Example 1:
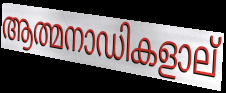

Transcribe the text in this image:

ആത്മനാഡികളാല്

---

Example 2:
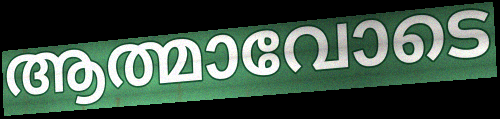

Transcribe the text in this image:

ആത്മാവോടെ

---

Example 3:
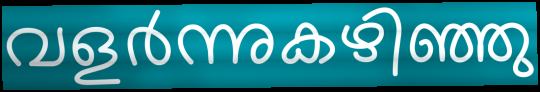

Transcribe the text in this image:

വളർന്നുകഴിഞ്ഞു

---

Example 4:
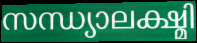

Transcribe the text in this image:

സന്ധ്യാലക്ഷ്മി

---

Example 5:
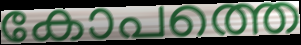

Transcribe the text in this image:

കോപത്തെ